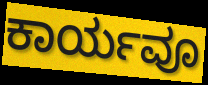
ಕಾರ್ಯವೂ